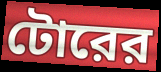
টোরের